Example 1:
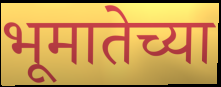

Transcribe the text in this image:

भूमातेच्या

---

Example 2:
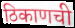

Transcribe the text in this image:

ठिकाणची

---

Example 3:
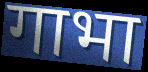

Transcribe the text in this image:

गाभा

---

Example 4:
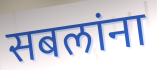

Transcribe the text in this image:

सबलांना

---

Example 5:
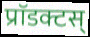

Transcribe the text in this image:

प्रॉडक्टस्